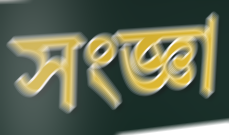
সংজ্ঞা